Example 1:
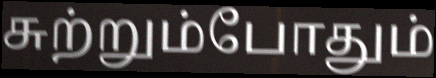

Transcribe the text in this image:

சுற்றும்போதும்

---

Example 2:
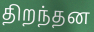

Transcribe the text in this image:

திறந்தன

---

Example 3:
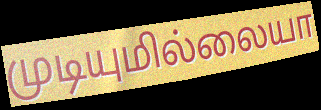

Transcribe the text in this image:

முடியுமில்லையா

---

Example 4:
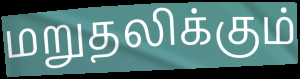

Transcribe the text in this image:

மறுதலிக்கும்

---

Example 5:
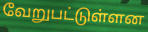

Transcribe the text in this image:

வேறுபட்டுள்ளன